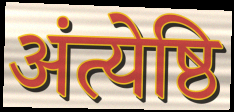
अंत्येष्ठि